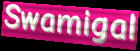
Swamigal